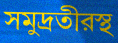
সমুদ্রতীরস্থ